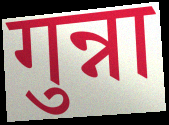
गुन्ना